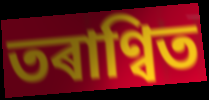
তৰাণ্বিত